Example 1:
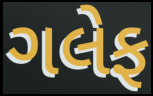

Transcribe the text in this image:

ગલેફ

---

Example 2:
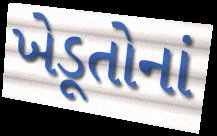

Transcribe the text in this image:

ખેડૂતોનાં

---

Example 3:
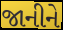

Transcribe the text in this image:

જાનીને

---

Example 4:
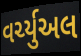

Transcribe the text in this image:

વર્ચ્યુઅલ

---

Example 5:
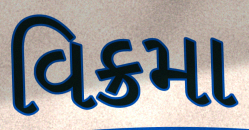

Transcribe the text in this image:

વિક્રમા